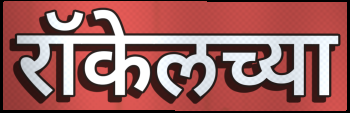
रॉकेलच्या